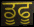
ਡੂਫੂ